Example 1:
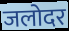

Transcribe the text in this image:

जलोदर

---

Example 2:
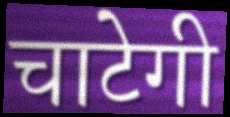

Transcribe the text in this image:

चाटेगी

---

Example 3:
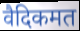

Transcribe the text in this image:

वैदिकमत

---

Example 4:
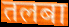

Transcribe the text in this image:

तलबा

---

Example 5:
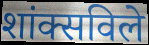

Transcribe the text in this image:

शांक्सविले